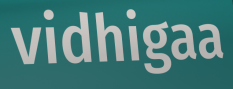
vidhigaa